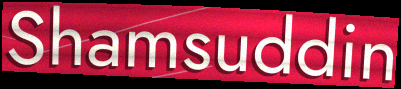
Shamsuddin